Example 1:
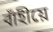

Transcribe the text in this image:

বাঁহীয়ে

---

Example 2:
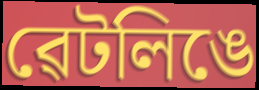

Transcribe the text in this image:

ৱেটলিঙে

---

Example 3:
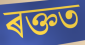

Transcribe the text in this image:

ৰক্তত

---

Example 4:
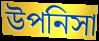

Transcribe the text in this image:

উপনিসা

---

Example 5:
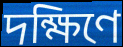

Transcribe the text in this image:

দক্ষিণে